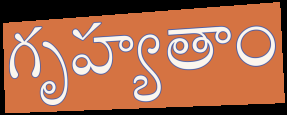
గృహ్యతాం